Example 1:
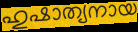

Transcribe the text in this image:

ഹുഷാത്യനായ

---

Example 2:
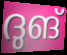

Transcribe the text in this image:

ദുങ്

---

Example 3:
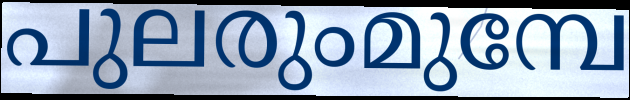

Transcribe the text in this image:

പുലരുംമുമ്പേ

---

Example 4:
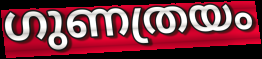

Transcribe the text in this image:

ഗുണത്രയം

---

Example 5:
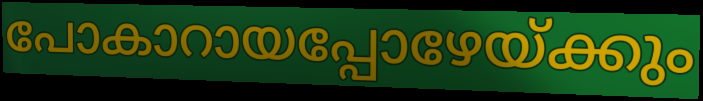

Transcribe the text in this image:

പോകാറായപ്പോഴേയ്ക്കും